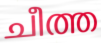
ചീത്ത